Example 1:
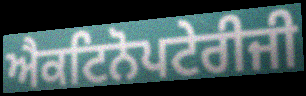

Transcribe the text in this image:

ਐਕਟਿਨੋਪਟੇਰੀਜੀ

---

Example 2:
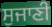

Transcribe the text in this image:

ਸੁਜਾਣੀ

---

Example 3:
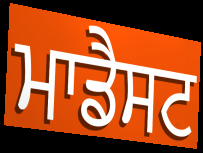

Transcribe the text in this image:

ਮਾਡੈਸਟ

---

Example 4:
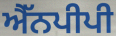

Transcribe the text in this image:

ਐੱਨਪੀਪੀ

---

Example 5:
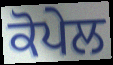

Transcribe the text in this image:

ਕੋਪੇਲ